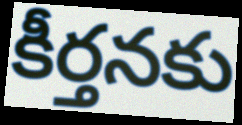
కీర్తనకు